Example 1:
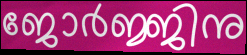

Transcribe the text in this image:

ജോർജ്ജിനു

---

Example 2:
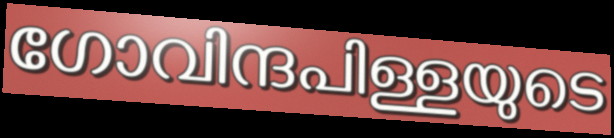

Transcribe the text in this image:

ഗോവിന്ദപിള്ളയുടെ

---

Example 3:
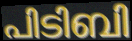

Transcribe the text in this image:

പിടിബി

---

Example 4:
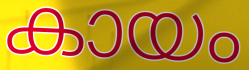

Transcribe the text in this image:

കായം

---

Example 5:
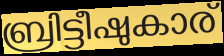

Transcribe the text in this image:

ബ്രിട്ടീഷുകാര്